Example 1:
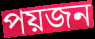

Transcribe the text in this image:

পয়জন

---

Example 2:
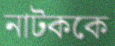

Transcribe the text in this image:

নাটককে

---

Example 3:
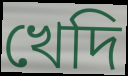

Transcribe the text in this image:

খেদি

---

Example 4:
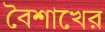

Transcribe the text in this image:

বৈশাখের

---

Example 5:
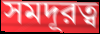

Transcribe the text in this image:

সমদূরত্ব